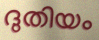
ദുതിയം